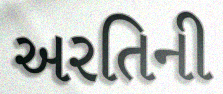
અરતિની